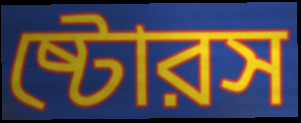
ষ্টোরস